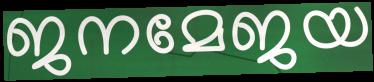
ജനമേജയ